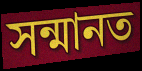
সন্মানত